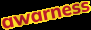
awarness